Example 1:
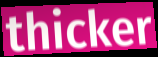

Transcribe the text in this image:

thicker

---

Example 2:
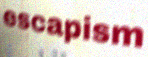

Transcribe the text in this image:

escapism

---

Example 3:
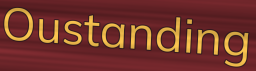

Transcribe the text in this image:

Oustanding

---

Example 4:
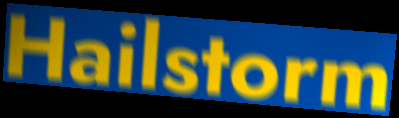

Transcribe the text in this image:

Hailstorm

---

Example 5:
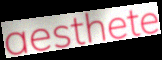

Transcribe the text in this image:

aesthete